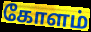
கோளம்